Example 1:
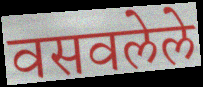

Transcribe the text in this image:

वसवलेले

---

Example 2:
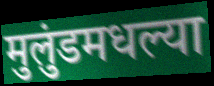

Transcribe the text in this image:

मुलुंडमधल्या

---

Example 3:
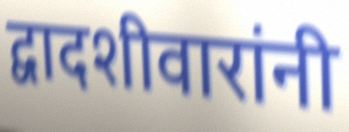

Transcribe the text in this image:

द्वादशीवारांनी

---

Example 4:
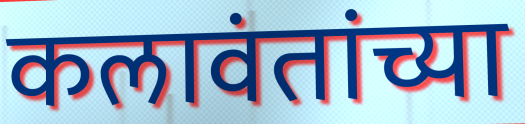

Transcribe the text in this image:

कलावंतांच्या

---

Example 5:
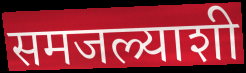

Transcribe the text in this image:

समजल्याशी